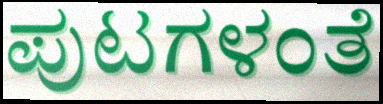
ಪುಟಗಳಂತೆ